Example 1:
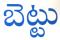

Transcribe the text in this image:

బెట్టు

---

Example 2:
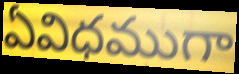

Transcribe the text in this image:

ఏవిధముగా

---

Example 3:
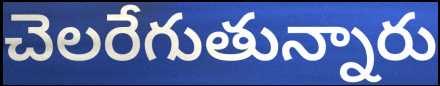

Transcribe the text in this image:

చెలరేగుతున్నారు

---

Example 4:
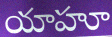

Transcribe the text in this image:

యాహూ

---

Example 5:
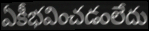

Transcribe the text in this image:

ఏకీభవించడంలేదు